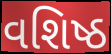
વશિષ્ઠ